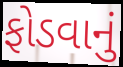
ફોડવાનું